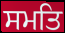
ਸਮਤਿ